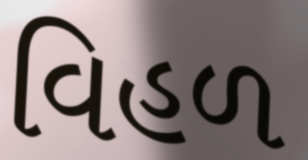
વિહળ